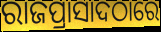
ରାଜପ୍ରାସାଦଠାରେ